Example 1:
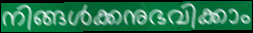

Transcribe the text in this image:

നിങ്ങൾക്കനുഭവിക്കാം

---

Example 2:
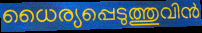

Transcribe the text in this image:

ധൈര്യപ്പെടുത്തുവിൻ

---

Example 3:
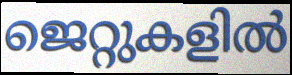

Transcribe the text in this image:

ജെറ്റുകളിൽ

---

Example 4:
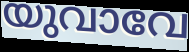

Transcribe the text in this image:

യുവാവേ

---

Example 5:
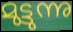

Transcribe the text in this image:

മുട്ടുന്നു